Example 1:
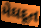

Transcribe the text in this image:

મેઘદૂત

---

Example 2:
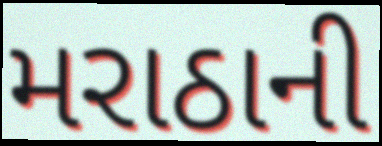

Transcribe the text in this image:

મરાઠાની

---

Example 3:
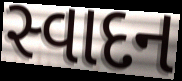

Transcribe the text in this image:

સ્વાદન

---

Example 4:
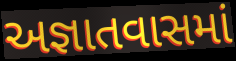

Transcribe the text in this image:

અજ્ઞાતવાસમાં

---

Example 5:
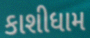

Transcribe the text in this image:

કાશીધામ